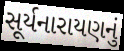
સૂર્યનારાયણનું